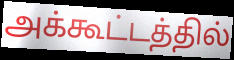
அக்கூட்டத்தில்